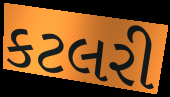
કટલરી